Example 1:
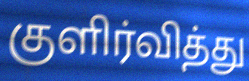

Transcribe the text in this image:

குளிர்வித்து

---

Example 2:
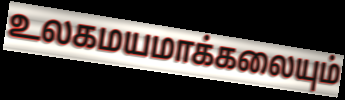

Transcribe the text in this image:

உலகமயமாக்கலையும்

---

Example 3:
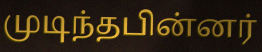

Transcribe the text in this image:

முடிந்தபின்னர்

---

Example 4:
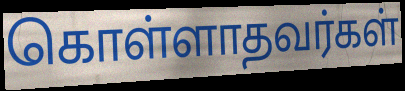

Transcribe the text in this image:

கொள்ளாதவர்கள்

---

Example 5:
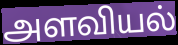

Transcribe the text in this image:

அளவியல்